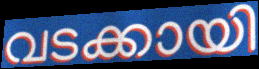
വടക്കായി